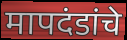
मापदंडांचे